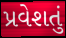
પ્રવેશતું